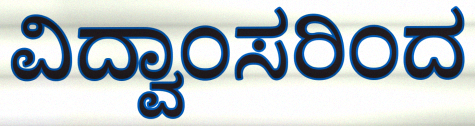
ವಿದ್ವಾಂಸರಿಂದ